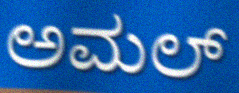
ಅಮಲ್